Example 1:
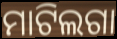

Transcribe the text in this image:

ମାଟିଲଗା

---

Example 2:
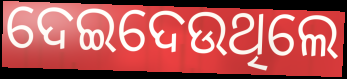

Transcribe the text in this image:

ଦେଇଦେଉଥିଲେ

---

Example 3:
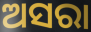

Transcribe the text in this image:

ଅସରା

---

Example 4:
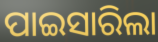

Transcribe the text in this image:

ପାଇସାରିଲା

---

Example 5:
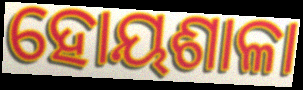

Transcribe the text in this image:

ହୋୟଶାଳା